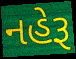
નહેરૂ